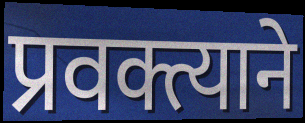
प्रवक्त्याने